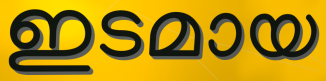
ഇടമായ